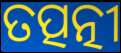
ତତ୍ପତ୍ନୀ